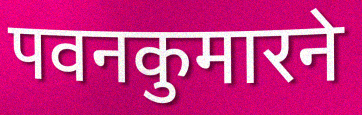
पवनकुमारने